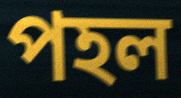
পহল